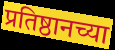
प्रतिष्ठानच्या